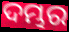
ଦମ୍ଭର